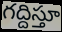
గద్దిస్తూ